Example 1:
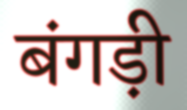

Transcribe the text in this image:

बंगड़ी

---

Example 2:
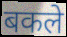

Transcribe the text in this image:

बकले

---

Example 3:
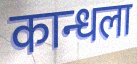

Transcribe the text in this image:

कान्धला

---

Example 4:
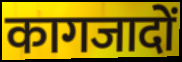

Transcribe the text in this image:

कागजादों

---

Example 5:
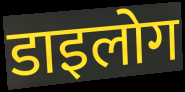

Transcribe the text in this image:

डाइलोग